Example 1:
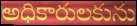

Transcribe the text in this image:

అధికారులకును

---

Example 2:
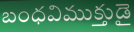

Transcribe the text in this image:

బంధవిముక్తుడై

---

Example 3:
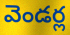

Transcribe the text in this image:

వెండర్ల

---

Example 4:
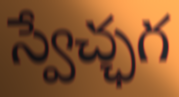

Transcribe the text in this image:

స్వేచ్ఛగ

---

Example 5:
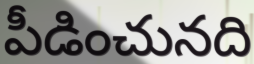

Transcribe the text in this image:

పీడించునది